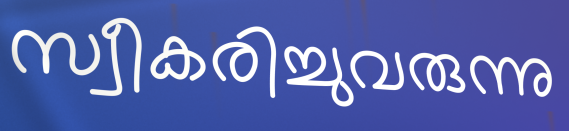
സ്വീകരിച്ചുവരുന്നു